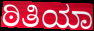
ಠಿತಿಯಾ